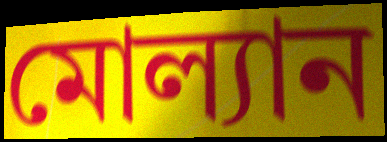
মোল্যান